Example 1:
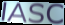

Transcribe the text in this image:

IASC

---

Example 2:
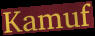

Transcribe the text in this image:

Kamuf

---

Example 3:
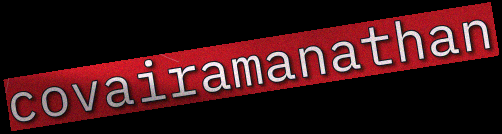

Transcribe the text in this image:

covairamanathan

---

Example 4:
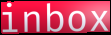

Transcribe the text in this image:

inbox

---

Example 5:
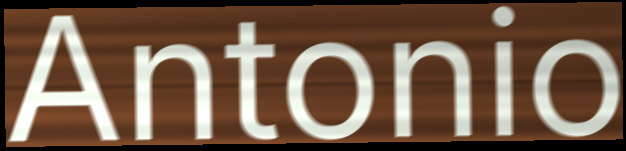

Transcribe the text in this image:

Antonio